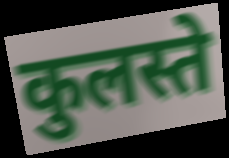
कुलस्ते